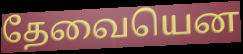
தேவையென